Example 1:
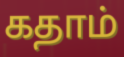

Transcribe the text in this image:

கதாம்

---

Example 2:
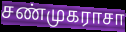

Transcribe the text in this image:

சண்முகராசா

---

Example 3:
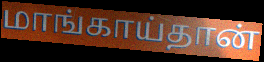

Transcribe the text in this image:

மாங்காய்தான்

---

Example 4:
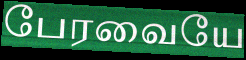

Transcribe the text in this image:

பேரவையே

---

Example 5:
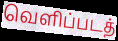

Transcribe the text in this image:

வெளிப்படத்